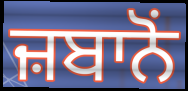
ਜ਼ਬਾਨੋਂ